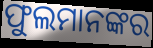
ଫୁଲମାନଙ୍କର